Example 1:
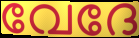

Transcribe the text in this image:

വേദേ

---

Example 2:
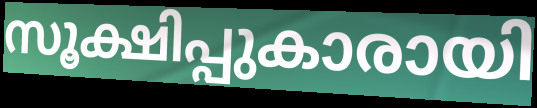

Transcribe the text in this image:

സൂക്ഷിപ്പുകാരായി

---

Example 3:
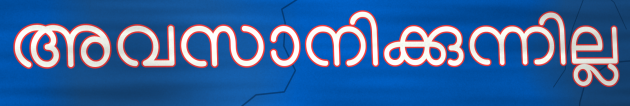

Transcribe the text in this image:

അവസാനിക്കുന്നില്ല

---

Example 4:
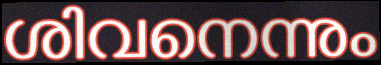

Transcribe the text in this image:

ശിവനെന്നും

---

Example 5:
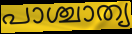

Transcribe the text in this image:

പാശ്ചാത്യ